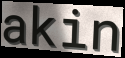
akin